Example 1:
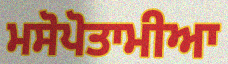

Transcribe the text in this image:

ਮਸੋਪੋਤਾਮੀਆ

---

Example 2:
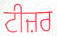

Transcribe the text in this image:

ਟੀਜ਼ਰ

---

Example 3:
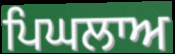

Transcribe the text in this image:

ਪਿਘਲਾਅ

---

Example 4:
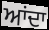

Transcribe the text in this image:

ਆਂਦਾ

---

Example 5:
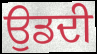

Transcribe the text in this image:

ਉਡਦੀ